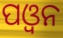
ପଓ୍ବନ